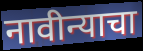
नावीन्याचा